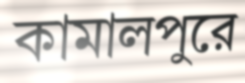
কামালপুরে